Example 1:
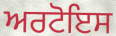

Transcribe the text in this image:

ਅਰਟੋਇਸ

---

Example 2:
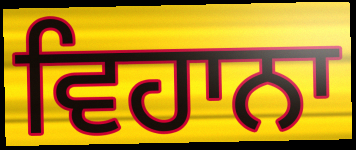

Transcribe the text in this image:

ਵਿਹਾਨਾ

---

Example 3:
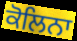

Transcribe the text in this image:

ਕੋਲਿਨਾ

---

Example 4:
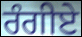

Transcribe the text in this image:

ਰੰਗੀਏ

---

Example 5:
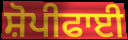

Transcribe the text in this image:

ਸ਼ੋਪੀਫਾਈ